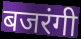
बजरंगी